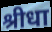
श्रीधा